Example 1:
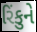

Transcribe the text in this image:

રિંકુને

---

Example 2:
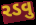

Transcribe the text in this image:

રડવુ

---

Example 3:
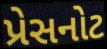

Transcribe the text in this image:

પ્રેસનોટ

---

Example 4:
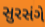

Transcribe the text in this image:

સુરસંગે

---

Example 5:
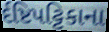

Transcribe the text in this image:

ર્દષ્ટિપટ્ટિકાના